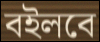
বইলবে